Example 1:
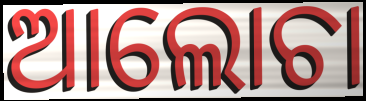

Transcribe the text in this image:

ଆଲୋଚା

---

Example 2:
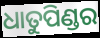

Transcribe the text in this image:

ଧାତୁପିଣ୍ଡର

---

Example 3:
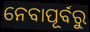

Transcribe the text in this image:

ନେବାପୂର୍ବରୁ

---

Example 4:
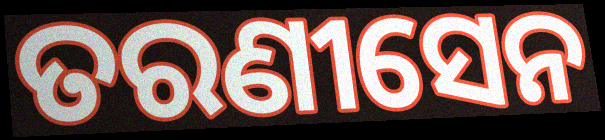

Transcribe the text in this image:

ତରଣୀସେନ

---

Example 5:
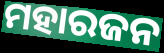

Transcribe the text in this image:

ମହାରଜନ